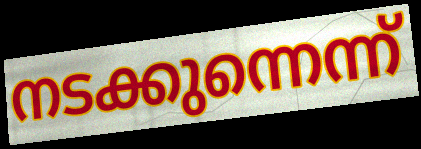
നടക്കുന്നെന്ന്